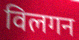
विलगन